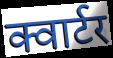
क्वार्टर